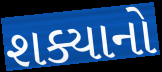
શક્યાનો